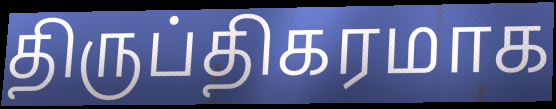
திருப்திகரமாக